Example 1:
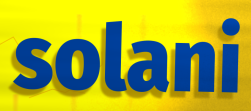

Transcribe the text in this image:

solani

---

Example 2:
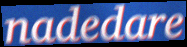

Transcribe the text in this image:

nadedare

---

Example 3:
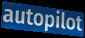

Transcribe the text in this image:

autopilot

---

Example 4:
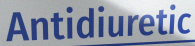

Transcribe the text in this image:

Antidiuretic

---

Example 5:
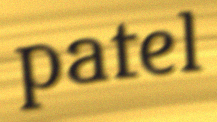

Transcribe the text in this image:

patel